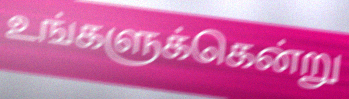
உங்களுக்கென்று